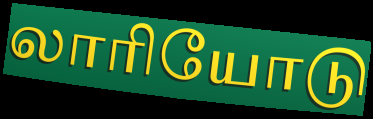
லாரியோடு